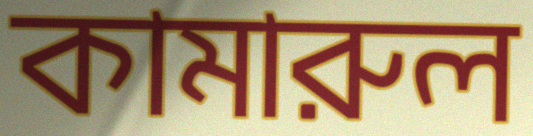
কামারুল